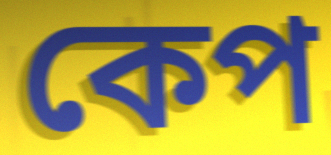
কেপ